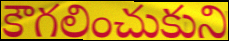
కౌగలించుకుని